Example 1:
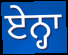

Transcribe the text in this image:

ਏਨ੍ਹ੍ਹਾ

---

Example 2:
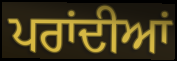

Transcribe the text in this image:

ਪਰਾਂਦੀਆਂ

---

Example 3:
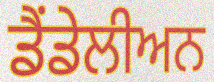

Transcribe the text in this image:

ਡੈਂਡੇਲੀਅਨ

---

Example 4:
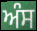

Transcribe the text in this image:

ਅੰਸ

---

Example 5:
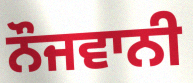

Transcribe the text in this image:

ਨੌਜਵਾਨੀ